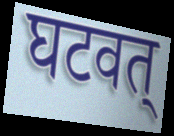
घटवत्